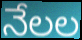
నేలల